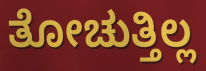
ತೋಚುತ್ತಿಲ್ಲ